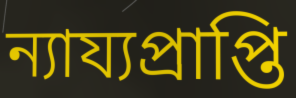
ন্যায্যপ্রাপ্তি